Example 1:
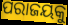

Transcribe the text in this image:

ପରାଜୟକୁ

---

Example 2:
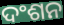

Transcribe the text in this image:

ଦଂଶନ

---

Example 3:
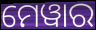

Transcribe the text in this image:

ମେୱାର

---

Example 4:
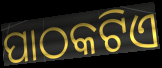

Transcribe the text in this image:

ପାଠକଟିଏ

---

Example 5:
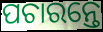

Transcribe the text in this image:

ପଚାରନ୍ତେ